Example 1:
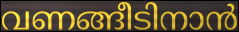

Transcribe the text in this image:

വണങ്ങീടിനാൻ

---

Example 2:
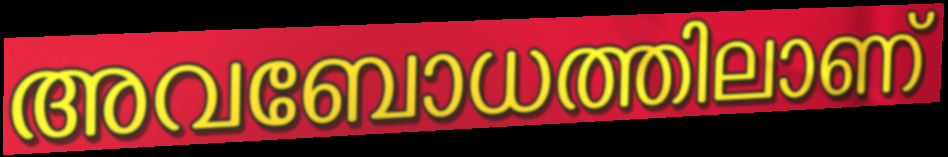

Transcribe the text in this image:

അവബോധത്തിലാണ്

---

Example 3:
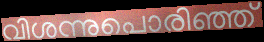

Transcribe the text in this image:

വിശന്നുപൊരിഞ്ഞ്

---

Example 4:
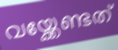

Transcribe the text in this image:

വയ്ക്കേണ്ടത്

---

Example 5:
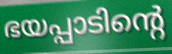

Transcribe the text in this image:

ഭയപ്പാടിന്റെ